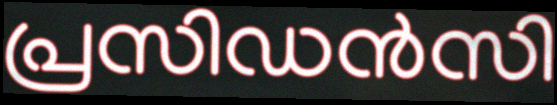
പ്രസിഡൻസി